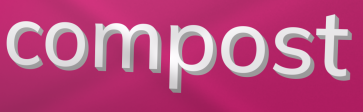
compost